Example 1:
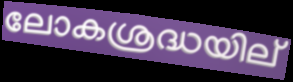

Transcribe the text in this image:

ലോകശ്രദ്ധയില്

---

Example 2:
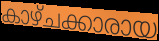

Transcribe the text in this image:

കാഴ്ചക്കാരായ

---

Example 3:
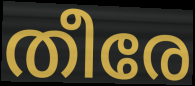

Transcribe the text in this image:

തീരേ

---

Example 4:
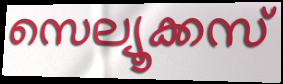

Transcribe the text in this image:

സെല്യൂക്കസ്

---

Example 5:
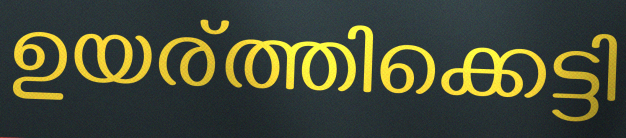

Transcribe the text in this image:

ഉയര്ത്തിക്കെട്ടി